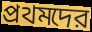
প্রথমদের